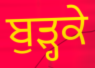
ਬੁੜ੍ਹਕੇ